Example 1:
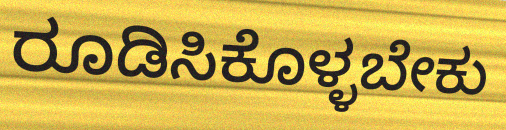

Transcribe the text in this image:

ರೂಡಿಸಿಕೊಳ್ಳಬೇಕು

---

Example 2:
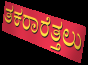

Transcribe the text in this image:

ತಕರಾರೆತ್ತಲು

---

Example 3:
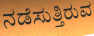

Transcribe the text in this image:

ನಡೆಸುತ್ತಿರುವ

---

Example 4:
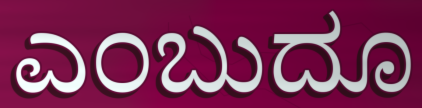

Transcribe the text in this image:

ಎಂಬುದೂ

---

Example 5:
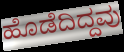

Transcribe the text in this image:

ಹೊಡೆದಿದ್ದವು